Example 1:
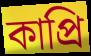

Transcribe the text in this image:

কাপ্রি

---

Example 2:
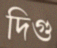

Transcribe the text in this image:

দিগু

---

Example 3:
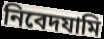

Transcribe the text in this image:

নিবেদযামি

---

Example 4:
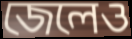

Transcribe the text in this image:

জেলেও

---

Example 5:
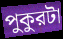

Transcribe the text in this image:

পুকুরটা